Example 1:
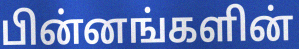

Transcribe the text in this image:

பின்னங்களின்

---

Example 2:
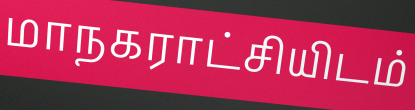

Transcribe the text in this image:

மாநகராட்சியிடம்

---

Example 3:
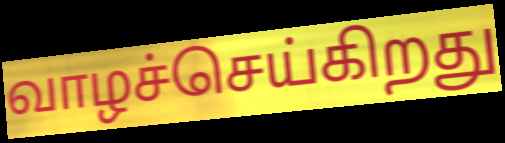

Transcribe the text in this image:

வாழச்செய்கிறது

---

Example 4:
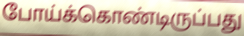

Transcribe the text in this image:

போய்க்கொண்டிருப்பது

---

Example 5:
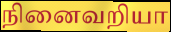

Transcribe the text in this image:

நினைவறியா